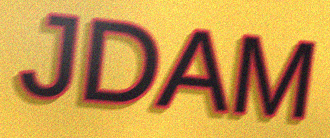
JDAM